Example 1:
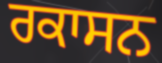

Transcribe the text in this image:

ਰਕਾਸਨ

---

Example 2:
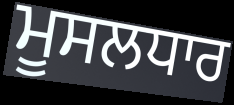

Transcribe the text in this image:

ਮੂਸਲਧਾਰ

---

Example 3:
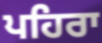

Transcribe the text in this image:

ਪਹਿਰਾ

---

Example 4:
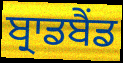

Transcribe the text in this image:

ਬ੍ਰਾਡਬੈਂਡ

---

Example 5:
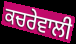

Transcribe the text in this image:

ਕਚਰੇਵਾਲੀ